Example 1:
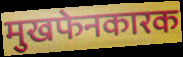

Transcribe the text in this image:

मुखफेनकारक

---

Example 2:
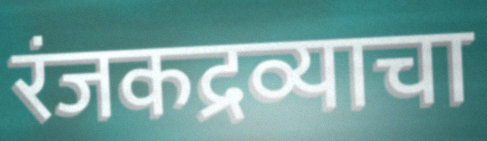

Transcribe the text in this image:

रंजकद्रव्याचा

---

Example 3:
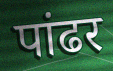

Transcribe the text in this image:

पांढर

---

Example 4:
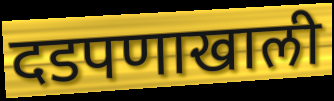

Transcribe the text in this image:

दडपणाखाली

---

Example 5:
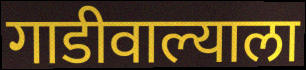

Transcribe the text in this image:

गाडीवाल्याला